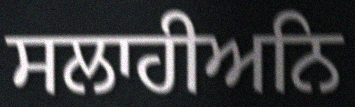
ਸਲਾਹੀਅਨਿ